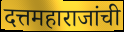
दत्तमहाराजांची